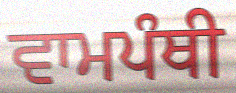
ਵਾਮਪੰਥੀ